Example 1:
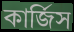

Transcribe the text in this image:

কার্জিস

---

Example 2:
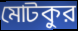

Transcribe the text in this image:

মোটকুর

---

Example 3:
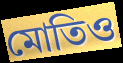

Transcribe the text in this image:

মোতিও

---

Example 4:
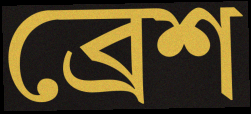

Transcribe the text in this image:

ব্রেশ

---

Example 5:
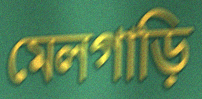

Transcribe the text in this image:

মেলগাড়ি